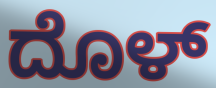
ದೊಳ್